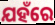
ଯହଁରେ